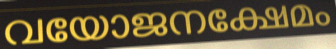
വയോജനക്ഷേമം